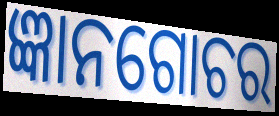
ଜ୍ଞାନଗୋଚର